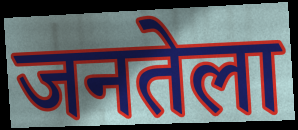
जनतेला